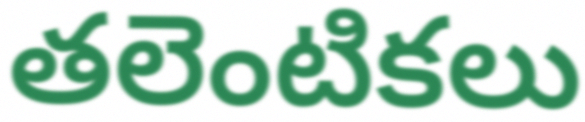
తలెంటికలు